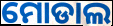
ମୋଡାଲ